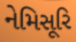
નેમિસૂરિ